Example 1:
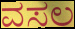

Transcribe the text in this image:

ವಸಲ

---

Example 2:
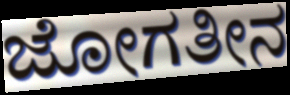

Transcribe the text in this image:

ಜೋಗತೀನ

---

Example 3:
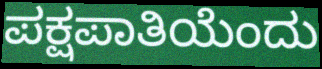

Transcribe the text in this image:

ಪಕ್ಷಪಾತಿಯೆಂದು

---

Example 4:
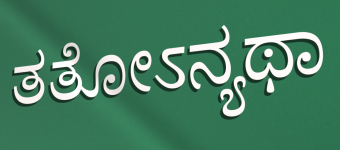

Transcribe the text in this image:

ತತೋಽನ್ಯಥಾ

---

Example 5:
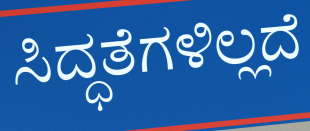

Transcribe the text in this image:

ಸಿದ್ಧತೆಗಳಿಲ್ಲದೆ